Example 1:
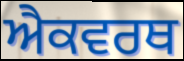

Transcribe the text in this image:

ਐਕਵਰਥ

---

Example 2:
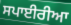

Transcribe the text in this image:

ਸਪਾਈਰੀਆ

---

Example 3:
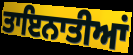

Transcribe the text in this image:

ਤਾਇਨਾਤੀਆਂ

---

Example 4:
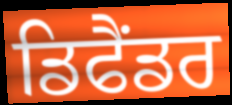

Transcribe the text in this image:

ਡਿਫੈਂਡਰ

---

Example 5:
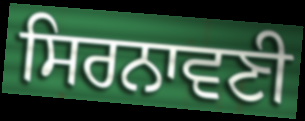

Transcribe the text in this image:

ਸਿਰਨਾਵਣੀ